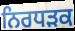
ਨਿਰਧੜਕ